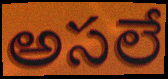
అసలే